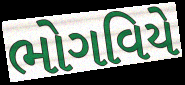
ભોગવિયે